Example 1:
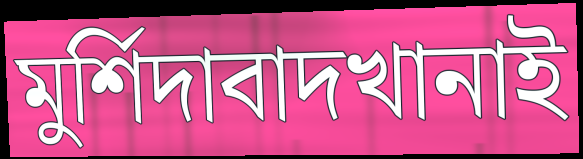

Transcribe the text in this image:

মুর্শিদাবাদখানাই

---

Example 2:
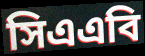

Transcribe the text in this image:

সিএএবি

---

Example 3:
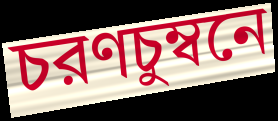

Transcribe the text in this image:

চরণচুম্বনে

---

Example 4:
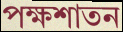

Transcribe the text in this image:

পক্ষশাতন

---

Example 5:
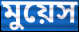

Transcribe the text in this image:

মুয়েস